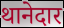
थानेदार